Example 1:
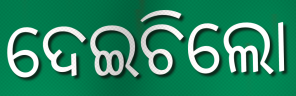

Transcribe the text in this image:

ଦେଇଚିଲୋ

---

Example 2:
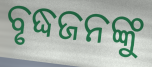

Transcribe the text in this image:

ବୃଦ୍ଧଜନଙ୍କୁ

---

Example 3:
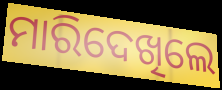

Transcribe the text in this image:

ମାରିଦେଖିଲେ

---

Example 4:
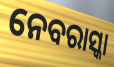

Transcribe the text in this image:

ନେବରାସ୍କା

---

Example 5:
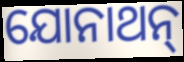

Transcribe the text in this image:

ଯୋନାଥନ୍